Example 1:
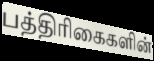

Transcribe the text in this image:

பத்திரிகைகளின்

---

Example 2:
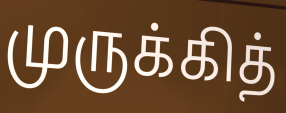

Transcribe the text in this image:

முருக்கித்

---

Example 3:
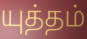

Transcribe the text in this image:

யுத்தம்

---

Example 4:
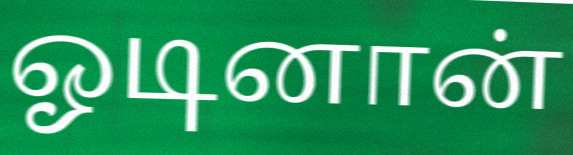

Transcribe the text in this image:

ஓடினான்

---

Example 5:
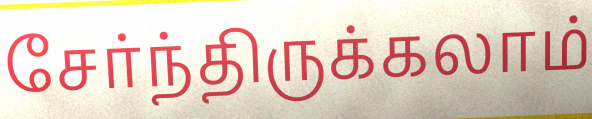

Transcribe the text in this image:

சேர்ந்திருக்கலாம்